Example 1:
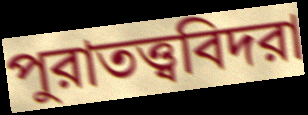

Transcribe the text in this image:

পুরাতত্ত্ববিদরা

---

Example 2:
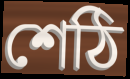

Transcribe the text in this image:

শেঠি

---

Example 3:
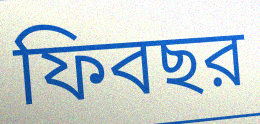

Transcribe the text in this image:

ফিবছর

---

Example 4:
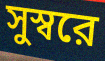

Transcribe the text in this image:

সুস্বরে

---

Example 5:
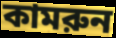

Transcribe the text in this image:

কামরুন